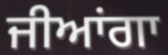
ਜੀਆਂਗਾ